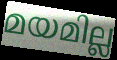
മയമില്ല